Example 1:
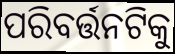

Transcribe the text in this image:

ପରିବର୍ତ୍ତନଟିକୁ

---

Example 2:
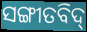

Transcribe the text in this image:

ସଙ୍ଗୀତବିଦ୍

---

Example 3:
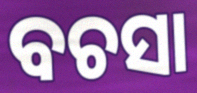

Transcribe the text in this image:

ବଚସା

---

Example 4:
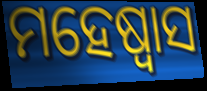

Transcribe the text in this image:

ମହେଷ୍ୱାସ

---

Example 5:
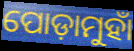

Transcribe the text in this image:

ପୋଡ଼ାମୁହାଁ